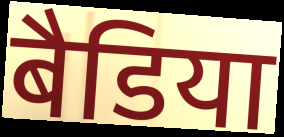
बैडिया